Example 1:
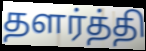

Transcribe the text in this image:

தளர்த்தி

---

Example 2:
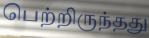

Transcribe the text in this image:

பெற்றிருந்தது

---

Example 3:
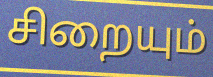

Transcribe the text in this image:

சிறையும்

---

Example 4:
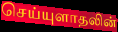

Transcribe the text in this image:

செய்யுளாதலின்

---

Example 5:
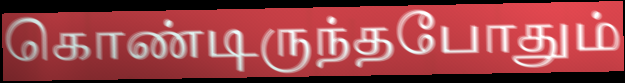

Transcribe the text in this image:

கொண்டிருந்தபோதும்